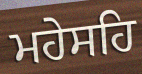
ਮਹੇਸਹਿ